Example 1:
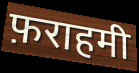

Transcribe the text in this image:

फ़राहमी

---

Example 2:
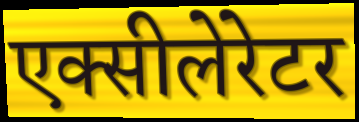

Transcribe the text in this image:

एक्सीलेरेटर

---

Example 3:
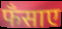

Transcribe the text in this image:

फँसाए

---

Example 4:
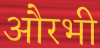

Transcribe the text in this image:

औरभी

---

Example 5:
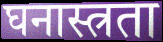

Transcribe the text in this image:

घनास्त्रता